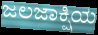
ಜಲಜಾಕ್ಷಿಯ